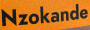
Nzokande